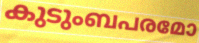
കുടുംബപരമോ